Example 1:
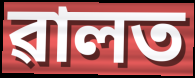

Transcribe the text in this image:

ৱালত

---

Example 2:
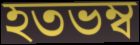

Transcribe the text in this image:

হতভম্ব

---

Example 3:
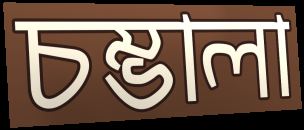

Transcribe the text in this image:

চম্ভালা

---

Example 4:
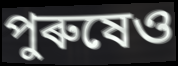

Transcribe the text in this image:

পুৰুষেও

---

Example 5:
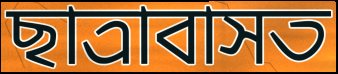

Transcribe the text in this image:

ছাত্ৰাবাসত